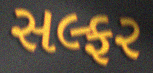
સલ્ફર